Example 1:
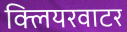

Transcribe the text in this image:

क्लियरवाटर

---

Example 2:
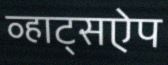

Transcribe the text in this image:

व्हाट्सऐप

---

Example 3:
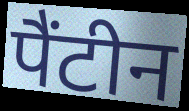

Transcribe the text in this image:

पैंटीन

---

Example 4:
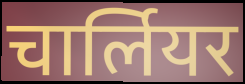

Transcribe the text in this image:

चार्लियर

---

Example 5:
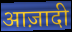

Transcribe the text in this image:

आज़ादी